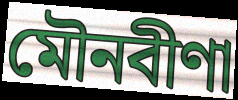
মৌনবীণা